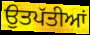
ਉਤਪੱਤੀਆਂ